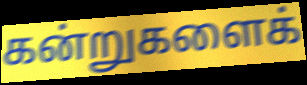
கன்றுகளைக்